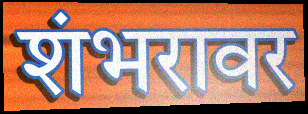
शंभरावर